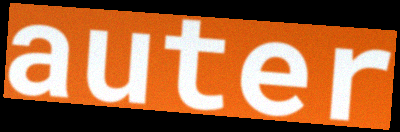
auter